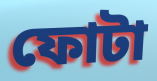
ফোটা